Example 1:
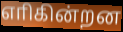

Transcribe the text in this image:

எரிகின்றன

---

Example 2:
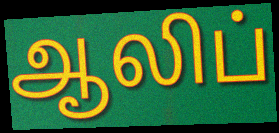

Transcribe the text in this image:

ஆலிப்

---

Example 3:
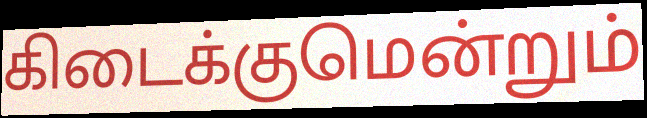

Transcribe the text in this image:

கிடைக்குமென்றும்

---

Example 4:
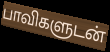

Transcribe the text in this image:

பாவிகளுடன்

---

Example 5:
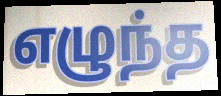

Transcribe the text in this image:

எழுந்த